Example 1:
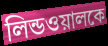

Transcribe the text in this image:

লিন্ডওয়ালকে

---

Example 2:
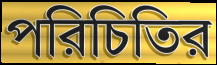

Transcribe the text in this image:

পরিচিতির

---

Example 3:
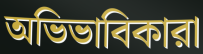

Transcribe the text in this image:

অভিভাবিকারা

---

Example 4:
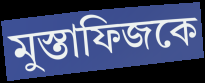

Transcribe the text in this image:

মুস্তাফিজকে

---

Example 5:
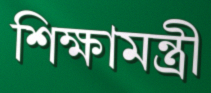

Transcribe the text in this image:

শিক্ষামন্ত্রী